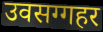
उवसग्गहर